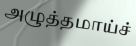
அழுத்தமாய்ச்